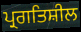
ਪ੍ਰਗਤਿਸ਼ੀਲ